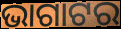
ଭାଗାଟର